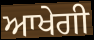
ਆਖੇਗੀ